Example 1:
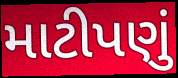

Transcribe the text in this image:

માટીપણું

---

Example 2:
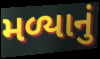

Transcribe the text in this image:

મળ્યાનું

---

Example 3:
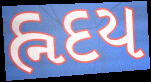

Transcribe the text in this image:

હ્નદય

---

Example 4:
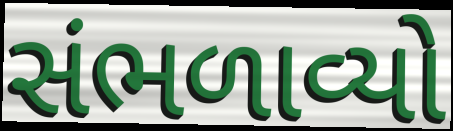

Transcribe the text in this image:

સંભળાવ્યો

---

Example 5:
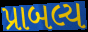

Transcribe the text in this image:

પ્રાબલ્ય